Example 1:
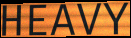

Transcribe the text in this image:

HEAVY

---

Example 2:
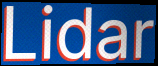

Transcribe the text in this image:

Lidar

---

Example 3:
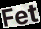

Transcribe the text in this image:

Fet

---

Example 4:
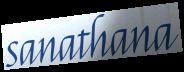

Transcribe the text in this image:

sanathana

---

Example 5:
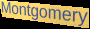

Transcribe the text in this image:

Montgomery